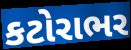
કટોરાભર